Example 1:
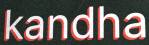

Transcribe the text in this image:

kandha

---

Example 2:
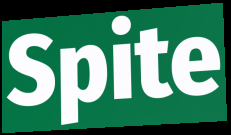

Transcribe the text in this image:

Spite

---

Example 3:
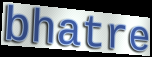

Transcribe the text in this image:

bhatre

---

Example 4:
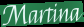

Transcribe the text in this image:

Martina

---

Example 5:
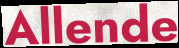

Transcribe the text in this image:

Allende